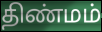
திண்மம்